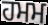
ਹਮਮ